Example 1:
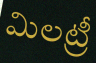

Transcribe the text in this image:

మిలట్రీ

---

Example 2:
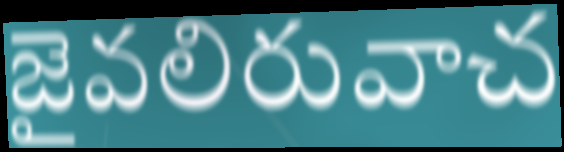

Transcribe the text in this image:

జైవలిరువాచ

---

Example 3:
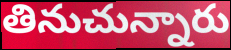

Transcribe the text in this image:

తినుచున్నారు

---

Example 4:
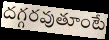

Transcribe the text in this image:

దగ్గరవుతూంటే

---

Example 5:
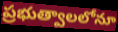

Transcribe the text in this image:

ప్రభుత్వాలలోనూ